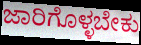
ಜಾರಿಗೊಳ್ಳಬೇಕು